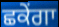
ਛਕੇਂਗਾ